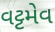
વટ્ટમેવ